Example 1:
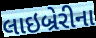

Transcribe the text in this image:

લાઇબ્રેરીના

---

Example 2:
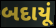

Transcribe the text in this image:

બદાયૂં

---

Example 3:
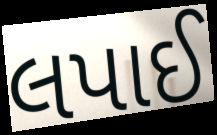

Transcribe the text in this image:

લપાઈ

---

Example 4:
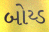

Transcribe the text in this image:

બોય્ડ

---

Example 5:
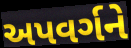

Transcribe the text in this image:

અપવર્ગને